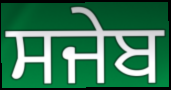
ਸਜੇਬ